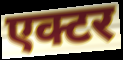
एक्टर